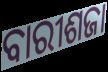
ବାରୀଶଜା